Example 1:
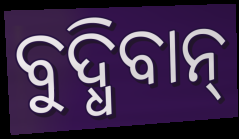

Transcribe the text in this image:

ବୁଦ୍ଧିବାନ୍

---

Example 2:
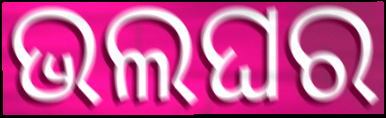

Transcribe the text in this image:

ଭଲଘର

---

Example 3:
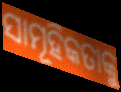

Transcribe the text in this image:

ସାମୂହିକତାକୁ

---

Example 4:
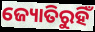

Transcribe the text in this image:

ଜ୍ୟୋତିରୁହିଁ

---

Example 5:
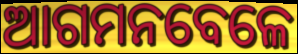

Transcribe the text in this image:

ଆଗମନବେଳେ